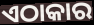
ଏଠାକାର